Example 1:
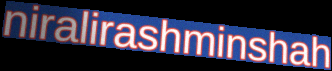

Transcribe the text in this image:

niralirashminshah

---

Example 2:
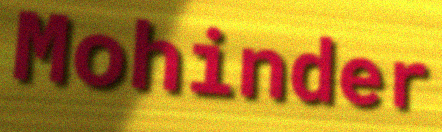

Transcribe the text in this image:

Mohinder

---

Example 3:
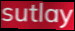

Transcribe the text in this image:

sutlay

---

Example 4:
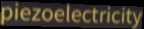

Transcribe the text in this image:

piezoelectricity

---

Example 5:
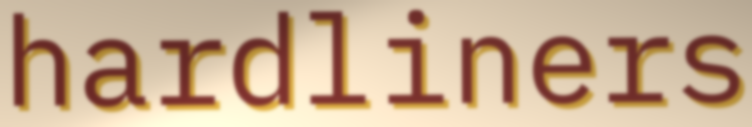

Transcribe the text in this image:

hardliners